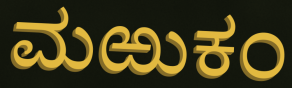
ಮಱುಕಂ